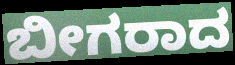
ಬೀಗರಾದ